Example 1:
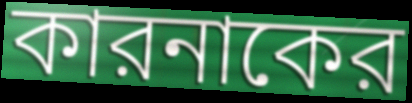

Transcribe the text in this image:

কারনাকের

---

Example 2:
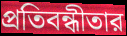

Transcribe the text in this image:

প্রতিবন্ধীতার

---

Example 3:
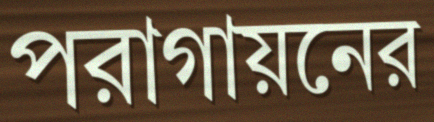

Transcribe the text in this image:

পরাগায়নের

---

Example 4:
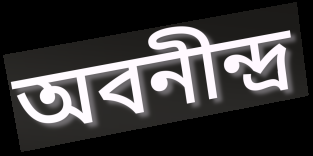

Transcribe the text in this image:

অবনীন্দ্র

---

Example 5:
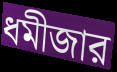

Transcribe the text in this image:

ধমীজার